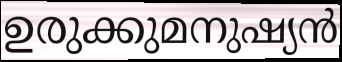
ഉരുക്കുമനുഷ്യൻ